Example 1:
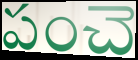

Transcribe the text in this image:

పంచె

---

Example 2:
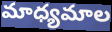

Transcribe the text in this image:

మాధ్యమాల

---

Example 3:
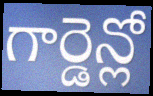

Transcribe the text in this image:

గార్డెన్లో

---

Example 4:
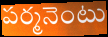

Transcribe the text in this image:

పర్మనెంటు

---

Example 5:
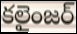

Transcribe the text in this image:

కలైంజర్